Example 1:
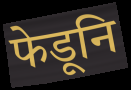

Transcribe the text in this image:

फेडूनि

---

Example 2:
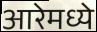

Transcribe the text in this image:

आरेमध्ये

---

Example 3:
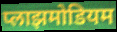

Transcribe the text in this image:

प्लाझमोडियम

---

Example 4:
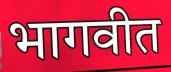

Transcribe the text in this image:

भागवीत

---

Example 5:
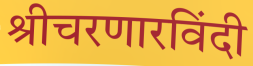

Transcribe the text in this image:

श्रीचरणारविंदी